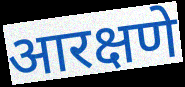
आरक्षणे